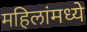
महिलांमध्ये